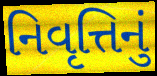
નિવૃત્તિનું